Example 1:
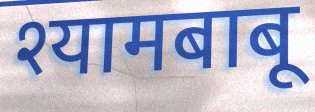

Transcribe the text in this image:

श्यामबाबू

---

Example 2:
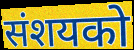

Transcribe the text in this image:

संशयको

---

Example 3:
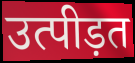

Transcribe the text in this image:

उत्पीड़त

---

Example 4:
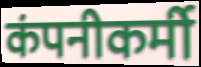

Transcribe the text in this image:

कंपनीकर्मी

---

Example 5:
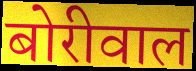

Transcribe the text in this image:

बोरीवाल